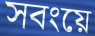
সবংয়ে